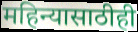
महिन्यासाठीही